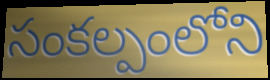
సంకల్పంలోని